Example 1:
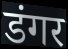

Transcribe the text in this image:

डंगर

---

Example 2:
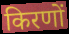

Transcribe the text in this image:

किरणों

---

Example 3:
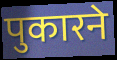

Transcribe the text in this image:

पुकारने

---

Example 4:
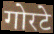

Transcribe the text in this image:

गोरटे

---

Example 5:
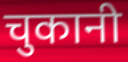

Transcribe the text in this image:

चुकानी